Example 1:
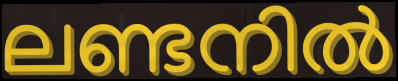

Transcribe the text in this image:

ലണ്ടനിൽ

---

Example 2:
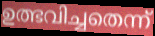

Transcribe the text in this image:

ഉത്ഭവിച്ചതെന്ന്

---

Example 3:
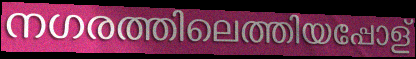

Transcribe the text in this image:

നഗരത്തിലെത്തിയപ്പോള്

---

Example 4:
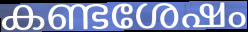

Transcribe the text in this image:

കണ്ടശേഷം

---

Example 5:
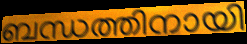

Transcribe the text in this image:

ബന്ധത്തിനായി